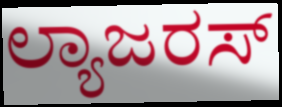
ಲ್ಯಾಜರಸ್